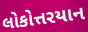
લોકોત્તરયાન